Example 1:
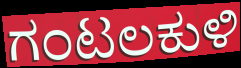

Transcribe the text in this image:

ಗಂಟಲಕುಳಿ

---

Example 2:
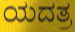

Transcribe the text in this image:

ಯದತ್ರ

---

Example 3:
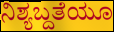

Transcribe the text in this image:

ನಿಶ್ಯಬ್ದತೆಯೂ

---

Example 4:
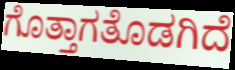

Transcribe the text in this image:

ಗೊತ್ತಾಗತೊಡಗಿದೆ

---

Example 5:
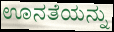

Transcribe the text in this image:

ಊನತೆಯನ್ನು